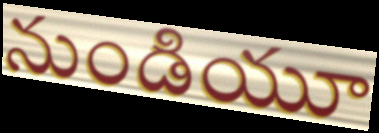
నుండియూ